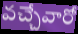
వచ్చేవారో